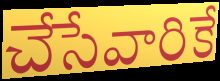
చేసేవారికే